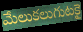
మేలుకలుగుటకై